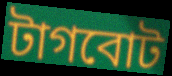
টাগবোট